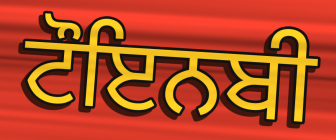
ਟੌਇਨਬੀ